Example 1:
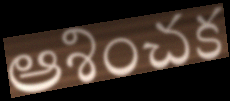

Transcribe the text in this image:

ఆశించక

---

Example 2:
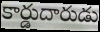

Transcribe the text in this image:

కార్డుదారుడు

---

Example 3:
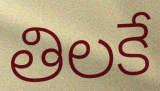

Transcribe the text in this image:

తిలకే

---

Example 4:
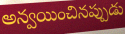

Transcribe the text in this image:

అన్వయించినప్పుడు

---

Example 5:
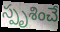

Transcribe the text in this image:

స్పృశించే